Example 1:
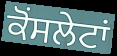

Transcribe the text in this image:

ਕੋਂਸਲੇਟਾਂ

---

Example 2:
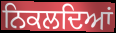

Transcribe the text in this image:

ਨਿਕਲਦਿਆਂ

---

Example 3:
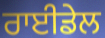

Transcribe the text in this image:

ਰਾਈਡੇਲ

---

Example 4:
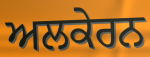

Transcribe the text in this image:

ਅਲਕੇਰਨ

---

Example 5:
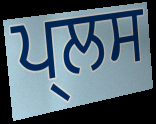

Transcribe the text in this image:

ਪ੍ਲਸ